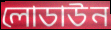
লোডাউন